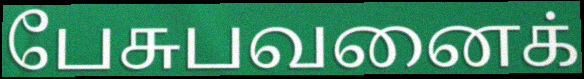
பேசுபவனைக்